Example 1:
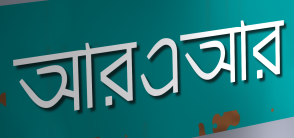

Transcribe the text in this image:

আরএআর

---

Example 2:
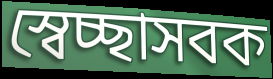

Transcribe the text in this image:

স্বেচ্ছাসবক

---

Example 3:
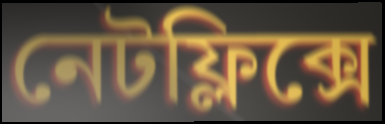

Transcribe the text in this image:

নেটফ্লিক্সে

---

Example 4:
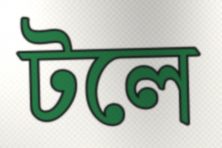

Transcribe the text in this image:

টলে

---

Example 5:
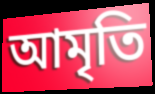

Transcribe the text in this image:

আমৃতি